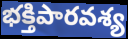
భక్తిపారవశ్య